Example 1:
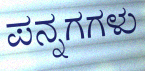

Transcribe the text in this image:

ಪನ್ನಗಗಳು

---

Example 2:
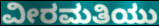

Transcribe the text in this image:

ವೀರಮತಿಯು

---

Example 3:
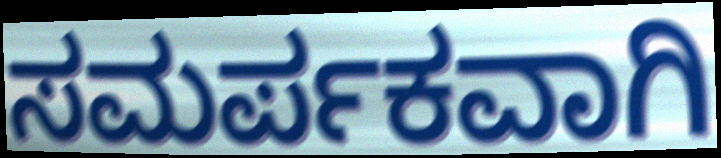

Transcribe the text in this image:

ಸಮರ್ಪಕವಾಗಿ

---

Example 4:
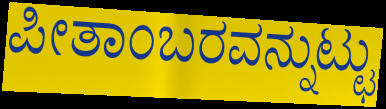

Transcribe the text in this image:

ಪೀತಾಂಬರವನ್ನುಟ್ಟು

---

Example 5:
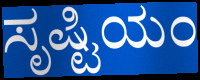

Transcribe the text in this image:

ಸೃಷ್ಟಿಯಂ